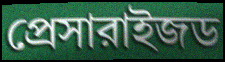
প্রেসারাইজড